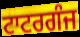
ਟਾਟਰਗੰਜ